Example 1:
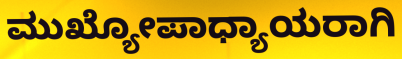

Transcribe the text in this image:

ಮುಖ್ಯೋಪಾಧ್ಯಾಯರಾಗಿ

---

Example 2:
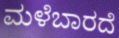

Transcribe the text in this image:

ಮಳೆಬಾರದೆ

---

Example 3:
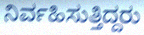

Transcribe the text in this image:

ನಿರ್ವಹಿಸುತ್ತಿದ್ದರು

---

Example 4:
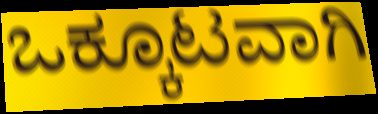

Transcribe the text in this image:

ಒಕ್ಕೂಟವಾಗಿ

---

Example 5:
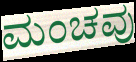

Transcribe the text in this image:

ಮಂಚವು